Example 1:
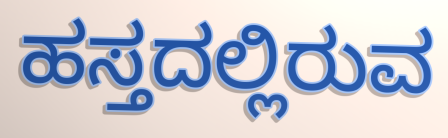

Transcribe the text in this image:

ಹಸ್ತದಲ್ಲಿರುವ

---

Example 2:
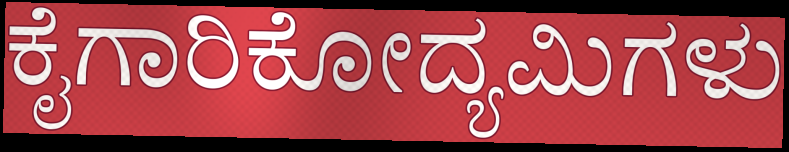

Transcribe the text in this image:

ಕೈಗಾರಿಕೋದ್ಯಮಿಗಳು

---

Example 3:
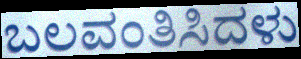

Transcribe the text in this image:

ಬಲವಂತಿಸಿದಳು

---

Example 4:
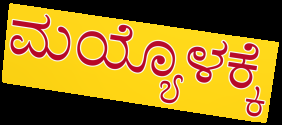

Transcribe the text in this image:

ಮಯ್ಯೊಳಕ್ಕೆ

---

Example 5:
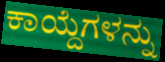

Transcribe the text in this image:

ಕಾಯ್ದೆಗಳನ್ನು